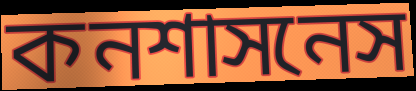
কনশাসনেস